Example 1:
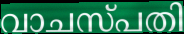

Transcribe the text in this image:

വാചസ്പതി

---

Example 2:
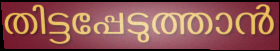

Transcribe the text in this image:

തിട്ടപ്പേടുത്താൻ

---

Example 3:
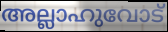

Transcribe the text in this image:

അല്ലാഹുവോട്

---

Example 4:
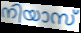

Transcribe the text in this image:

നിയാസ്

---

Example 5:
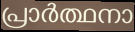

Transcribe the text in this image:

പ്രാർത്ഥനാ